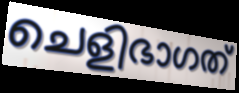
ചെളിഭാഗത്